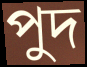
পুদ